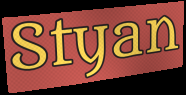
Styan